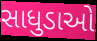
સાધુડાઓ